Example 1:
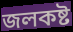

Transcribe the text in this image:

জলকষ্ট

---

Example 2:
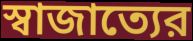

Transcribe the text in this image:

স্বাজাত্যের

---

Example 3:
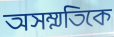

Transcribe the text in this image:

অসম্মতিকে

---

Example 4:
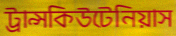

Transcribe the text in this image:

ট্রান্সকিউটেনিয়াস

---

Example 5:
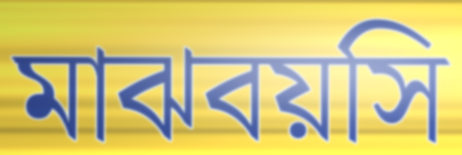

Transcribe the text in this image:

মাঝবয়সি